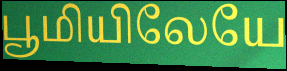
பூமியிலேயே